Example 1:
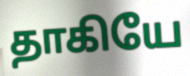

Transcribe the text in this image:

தாகியே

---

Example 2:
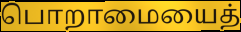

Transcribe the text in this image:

பொறாமையைத்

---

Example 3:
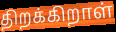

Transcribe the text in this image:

திறக்கிறாள்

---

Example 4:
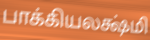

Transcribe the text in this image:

பாக்கியலக்ஷ்மி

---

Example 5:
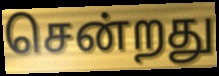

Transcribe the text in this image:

சென்றது